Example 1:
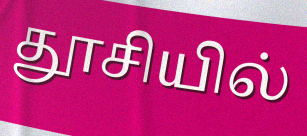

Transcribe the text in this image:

தூசியில்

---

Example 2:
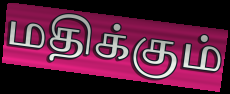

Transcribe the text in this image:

மதிக்கும்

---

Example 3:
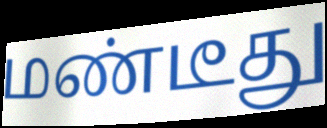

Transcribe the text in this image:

மண்டீது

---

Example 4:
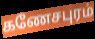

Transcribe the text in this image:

கணேசபுரம்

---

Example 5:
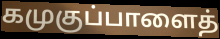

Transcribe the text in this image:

கமுகுப்பாளைத்